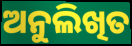
ଅନୁଲିଖିତ